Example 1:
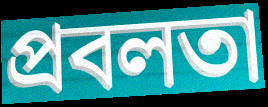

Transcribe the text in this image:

প্রবলতা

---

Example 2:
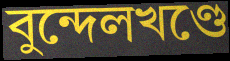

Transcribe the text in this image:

বুন্দেলখণ্ডে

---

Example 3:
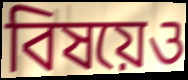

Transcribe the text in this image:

বিষয়েও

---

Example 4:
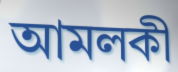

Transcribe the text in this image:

আমলকী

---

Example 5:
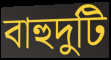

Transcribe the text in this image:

বাহুদুটি